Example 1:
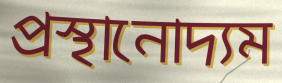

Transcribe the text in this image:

প্রস্থানোদ্যম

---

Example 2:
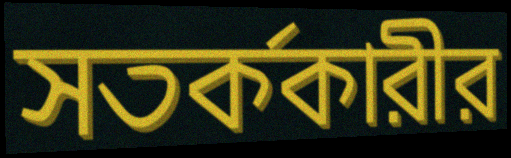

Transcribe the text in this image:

সতর্ককারীর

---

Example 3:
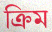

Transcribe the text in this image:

ক্রিম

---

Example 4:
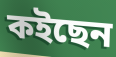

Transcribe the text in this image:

কইছেন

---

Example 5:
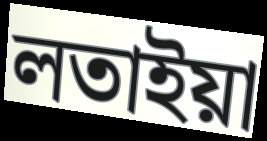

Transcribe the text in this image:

লতাইয়া